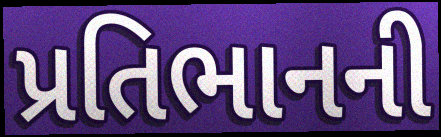
પ્રતિભાનની